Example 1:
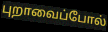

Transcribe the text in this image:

புறாவைப்போல்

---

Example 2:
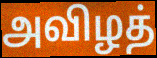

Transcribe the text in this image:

அவிழத்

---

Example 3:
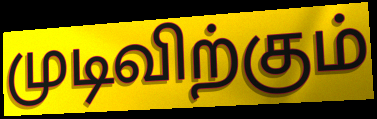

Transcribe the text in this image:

முடிவிற்கும்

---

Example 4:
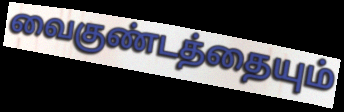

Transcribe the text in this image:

வைகுண்டத்தையும்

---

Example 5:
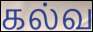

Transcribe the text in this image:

கல்வ